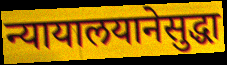
न्यायालयानेसुद्धा